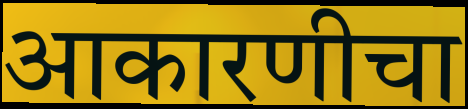
आकारणीचा